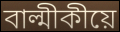
বাল্মীকীয়ে